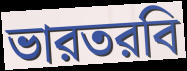
ভারতরবি